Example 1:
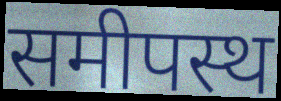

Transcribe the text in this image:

समीपस्थ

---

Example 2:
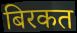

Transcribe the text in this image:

बिरकत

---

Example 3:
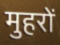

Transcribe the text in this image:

मुहरों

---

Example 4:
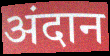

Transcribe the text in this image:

अंदान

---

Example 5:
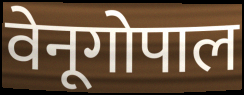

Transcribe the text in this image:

वेनूगोपाल